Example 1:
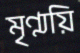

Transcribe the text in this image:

মৃণ্ময়ি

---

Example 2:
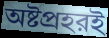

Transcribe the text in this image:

অষ্টপ্রহরই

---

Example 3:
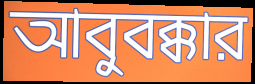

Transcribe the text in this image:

আবুবক্কার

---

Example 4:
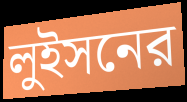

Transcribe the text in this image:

লুইসনের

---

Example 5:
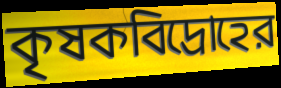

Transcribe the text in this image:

কৃষকবিদ্রোহের